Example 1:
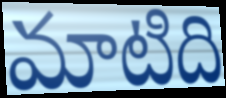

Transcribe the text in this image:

మాటిది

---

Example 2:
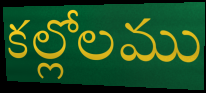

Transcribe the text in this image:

కల్లోలము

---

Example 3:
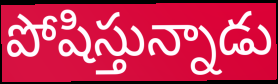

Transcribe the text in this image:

పోషిస్తున్నాడు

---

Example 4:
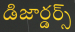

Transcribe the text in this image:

డిజార్డర్స్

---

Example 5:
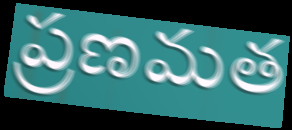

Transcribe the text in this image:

ప్రణమత